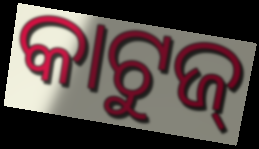
କାଟୁଜ୍